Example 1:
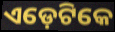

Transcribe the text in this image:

ଏଡ଼େଟିକେ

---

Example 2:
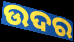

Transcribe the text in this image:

ଉଦର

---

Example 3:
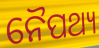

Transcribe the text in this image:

ନୈପଥ୍ୟ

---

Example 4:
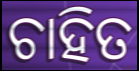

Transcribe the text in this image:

ଚାହିତ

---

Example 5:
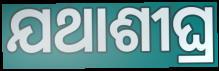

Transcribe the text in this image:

ଯଥାଶୀଘ୍ର